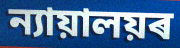
ন্যায়ালয়ৰ